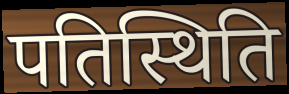
पतिस्थिति